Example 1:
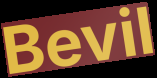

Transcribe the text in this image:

Bevil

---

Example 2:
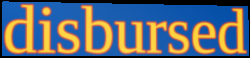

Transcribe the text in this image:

disbursed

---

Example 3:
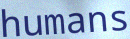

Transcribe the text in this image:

humans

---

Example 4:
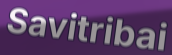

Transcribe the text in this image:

Savitribai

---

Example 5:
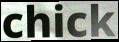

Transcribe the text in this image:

chick